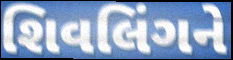
શિવલિંગને